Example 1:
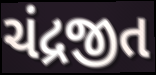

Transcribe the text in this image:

ચંદ્રજીત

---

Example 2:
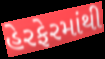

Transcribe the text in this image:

હેરફેરમાંથી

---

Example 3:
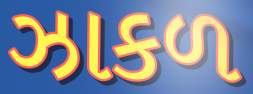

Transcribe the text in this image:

ઝાકળ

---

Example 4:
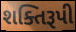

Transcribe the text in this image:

શક્તિરૂપી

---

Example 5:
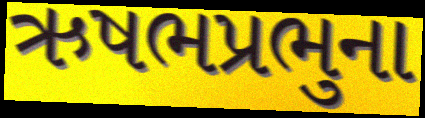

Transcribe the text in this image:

ઋષભપ્રભુના